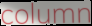
column